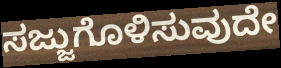
ಸಜ್ಜುಗೊಳಿಸುವುದೇ